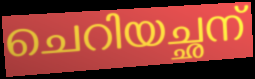
ചെറിയച്ഛന്